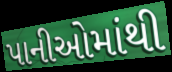
પાનીઓમાંથી